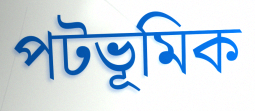
পটভূমিক